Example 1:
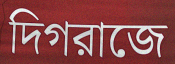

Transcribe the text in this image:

দিগরাজে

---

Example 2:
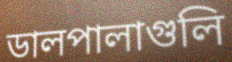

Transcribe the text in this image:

ডালপালাগুলি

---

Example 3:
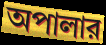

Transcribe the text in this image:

অপালার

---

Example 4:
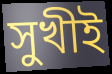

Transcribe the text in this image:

সুখীই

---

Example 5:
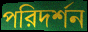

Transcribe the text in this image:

পরিদর্শন